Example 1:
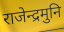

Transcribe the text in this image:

राजेन्द्रमुनि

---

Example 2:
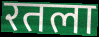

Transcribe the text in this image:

रतला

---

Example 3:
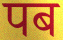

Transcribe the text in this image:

पब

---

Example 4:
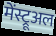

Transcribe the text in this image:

मेंस्ट्रूअल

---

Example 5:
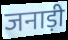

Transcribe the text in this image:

जनाड़ी